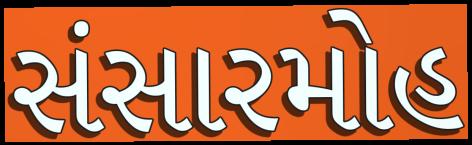
સંસારમોહ